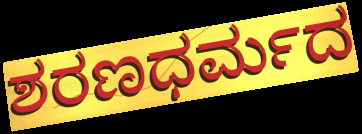
ಶರಣಧರ್ಮದ